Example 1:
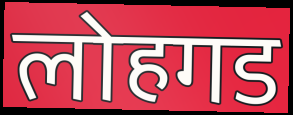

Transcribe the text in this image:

लोहगड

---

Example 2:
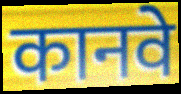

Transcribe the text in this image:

कानवे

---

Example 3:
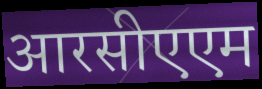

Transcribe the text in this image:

आरसीएएम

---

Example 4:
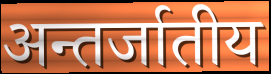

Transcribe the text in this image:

अन्तर्जातीय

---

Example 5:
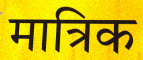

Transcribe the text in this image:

मात्रिक